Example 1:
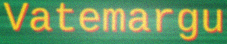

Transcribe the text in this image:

Vatemargu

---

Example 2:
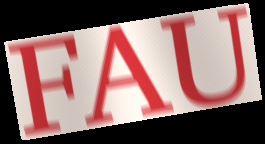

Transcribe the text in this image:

FAU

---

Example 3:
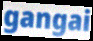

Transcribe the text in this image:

gangai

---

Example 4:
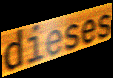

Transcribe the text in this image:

dieses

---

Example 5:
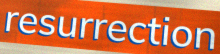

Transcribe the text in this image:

resurrection